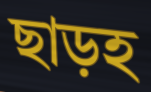
ছাড়হ